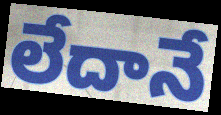
లేదానే